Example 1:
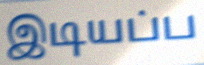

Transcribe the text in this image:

இடியப்ப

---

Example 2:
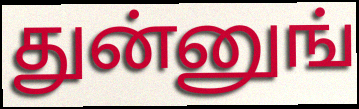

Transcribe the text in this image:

துன்னுங்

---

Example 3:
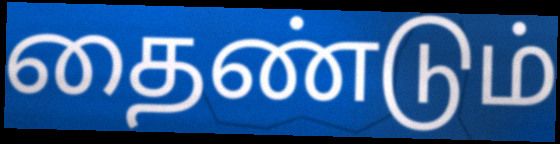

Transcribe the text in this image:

தைண்டும்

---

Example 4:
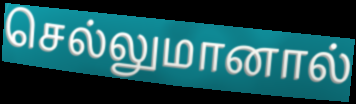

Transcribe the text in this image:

செல்லுமானால்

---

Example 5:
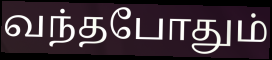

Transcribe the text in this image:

வந்தபோதும்